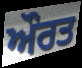
ਔਰਤ